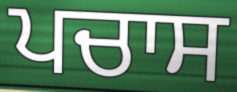
ਪਚਾਸ